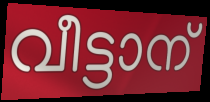
വീട്ടാന്